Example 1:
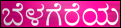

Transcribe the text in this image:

ಬೆಳಗೆರೆಯ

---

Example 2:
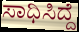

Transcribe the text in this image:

ಸಾಧಿಸಿದ್ದೆ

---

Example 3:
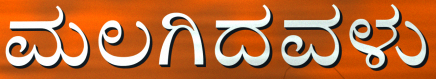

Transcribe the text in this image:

ಮಲಗಿದವಳು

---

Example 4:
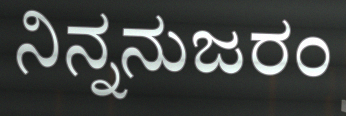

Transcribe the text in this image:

ನಿನ್ನನುಜರಂ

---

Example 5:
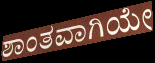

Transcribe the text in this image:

ಶಾಂತವಾಗಿಯೇ